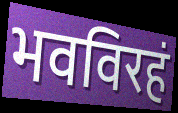
भवविरहं